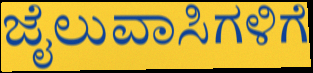
ಜೈಲುವಾಸಿಗಳಿಗೆ